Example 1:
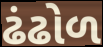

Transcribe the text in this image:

ઢંઢોળ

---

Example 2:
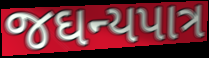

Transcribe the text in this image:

જઘન્યપાત્ર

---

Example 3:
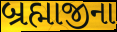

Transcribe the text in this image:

બ્રહ્માજીના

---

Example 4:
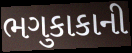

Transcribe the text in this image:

ભગુકાકાની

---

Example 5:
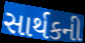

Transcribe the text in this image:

સાર્થકની